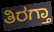
ತಿರಗ್ತಾ